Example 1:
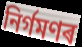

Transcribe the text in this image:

নিৰ্গমণৰ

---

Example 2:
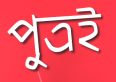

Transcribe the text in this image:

পুত্ৰই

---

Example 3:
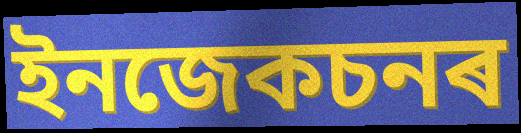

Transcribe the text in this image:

ইনজেকচনৰ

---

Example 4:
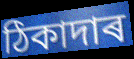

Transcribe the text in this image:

ঠিকাদাৰ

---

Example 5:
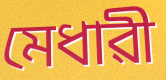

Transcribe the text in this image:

মেধাৱী